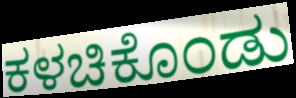
ಕಳಚಿಕೊಂಡು